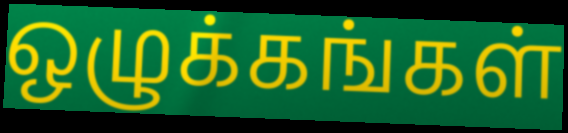
ஒழுக்கங்கள்